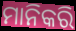
ମାନିକରି